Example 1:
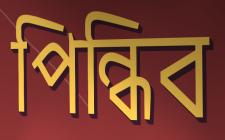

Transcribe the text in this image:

পিন্ধিব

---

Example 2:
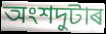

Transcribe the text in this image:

অংশদুটাৰ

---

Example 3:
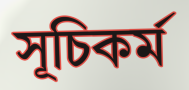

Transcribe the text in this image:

সূচিকৰ্ম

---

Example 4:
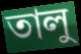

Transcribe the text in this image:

তালু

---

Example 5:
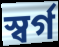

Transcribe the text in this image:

স্বৰ্গ